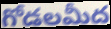
గోడలమీద